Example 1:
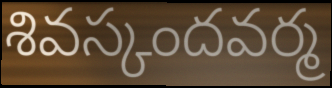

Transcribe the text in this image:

శివస్కందవర్మ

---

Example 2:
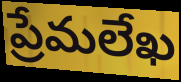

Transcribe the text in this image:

ప్రేమలేఖ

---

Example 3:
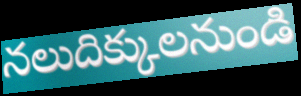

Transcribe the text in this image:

నలుదిక్కులనుండి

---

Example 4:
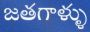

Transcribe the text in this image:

జతగాళ్ళు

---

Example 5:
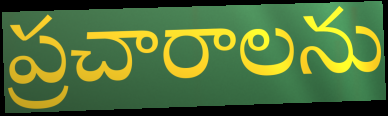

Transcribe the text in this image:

ప్రచారాలను